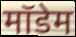
मॉडेम